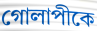
গোলাপীকে